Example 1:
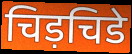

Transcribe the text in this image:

चिड़चिडे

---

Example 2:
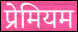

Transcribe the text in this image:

प्रेमियम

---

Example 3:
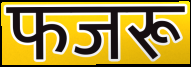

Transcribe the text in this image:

फजरू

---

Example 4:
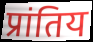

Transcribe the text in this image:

प्रांतिय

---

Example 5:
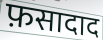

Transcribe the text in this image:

फ़सादाद